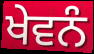
ਖੇਵਨੰ